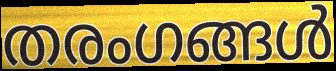
തരംഗങ്ങൾ